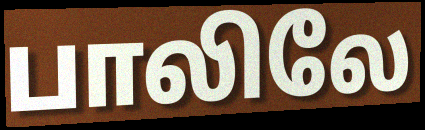
பாலிலே